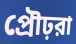
প্রৌঢ়রা